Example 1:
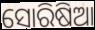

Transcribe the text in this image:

ସୋରିଷିଆ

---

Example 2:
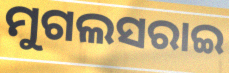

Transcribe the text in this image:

ମୁଗଲସରାଇ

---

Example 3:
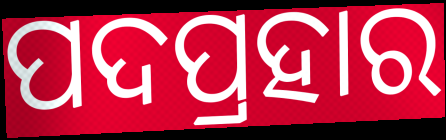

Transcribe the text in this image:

ପଦପ୍ରହାର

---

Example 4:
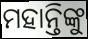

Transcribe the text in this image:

ମହାନ୍ତିଙ୍କୁ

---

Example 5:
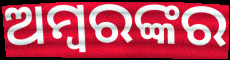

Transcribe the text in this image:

ଅମ୍ବରଙ୍କର